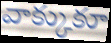
వాక్కుకూ